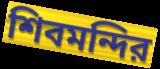
শিবমন্দির